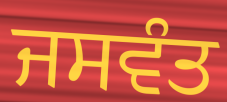
ਜਸਵੰਤ